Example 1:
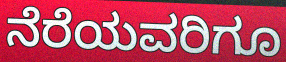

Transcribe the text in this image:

ನೆರೆಯವರಿಗೂ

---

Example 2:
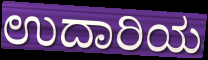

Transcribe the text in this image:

ಉದಾರಿಯ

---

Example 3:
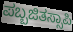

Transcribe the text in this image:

ಪಬ್ಬಜಿತಸ್ಸಾಪಿ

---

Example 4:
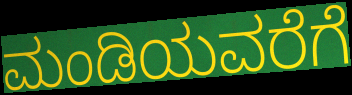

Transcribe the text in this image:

ಮಂಡಿಯವರೆಗೆ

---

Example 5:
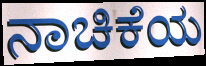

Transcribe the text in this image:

ನಾಚಿಕೆಯ